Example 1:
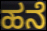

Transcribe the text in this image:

ಹನೆ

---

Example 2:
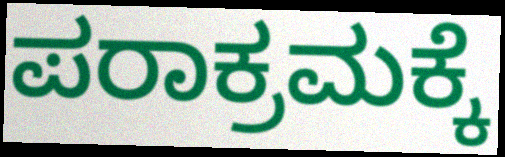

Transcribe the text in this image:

ಪರಾಕ್ರಮಕ್ಕೆ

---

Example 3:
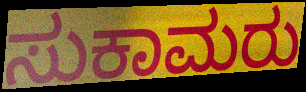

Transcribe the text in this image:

ಸುಕಾಮರು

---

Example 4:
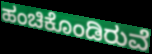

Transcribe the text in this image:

ಹಂಚಿಕೊಂಡಿರುವೆ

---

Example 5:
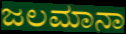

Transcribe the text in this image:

ಜಲಮಾನಾ